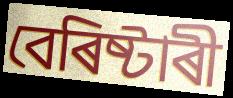
বেৰিষ্টাৰী